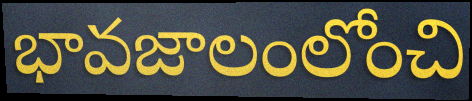
భావజాలంలోంచి